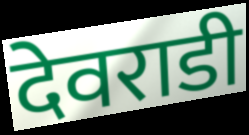
देवराडी